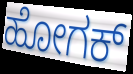
ಹೋಗಕ್